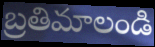
బ్రతిమాలండి